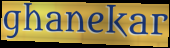
ghanekar